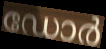
ഡോർ